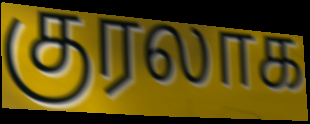
குரலாக